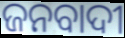
ଜନବାଦୀ